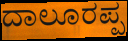
ದಾಲೂರಪ್ಪ